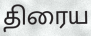
திரைய